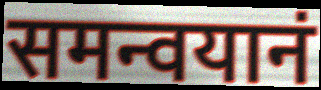
समन्वयानं